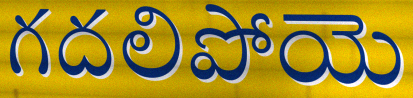
గదలిపోయె